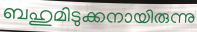
ബഹുമിടുക്കനായിരുന്നു